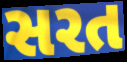
સરત